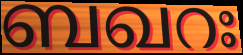
ബഖറഃ